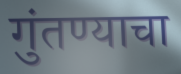
गुंतण्याचा